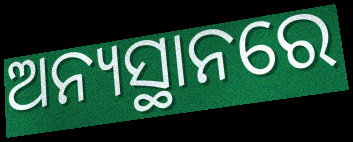
ଅନ୍ୟସ୍ଥାନରେ